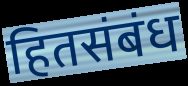
हितसंबंध